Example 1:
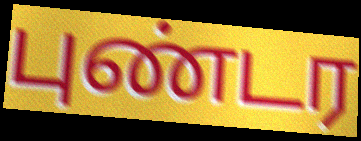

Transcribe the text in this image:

புண்டர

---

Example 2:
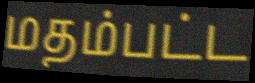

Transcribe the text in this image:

மதம்பட்ட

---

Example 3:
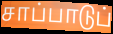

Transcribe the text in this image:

சாப்பாடுப்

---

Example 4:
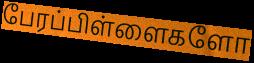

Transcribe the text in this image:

பேரப்பிள்ளைகளோ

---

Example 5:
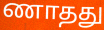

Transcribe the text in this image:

ணாதது